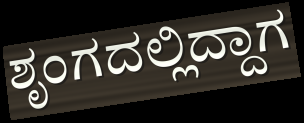
ಶೃಂಗದಲ್ಲಿದ್ದಾಗ